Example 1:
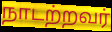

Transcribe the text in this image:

நாடற்றவர்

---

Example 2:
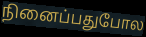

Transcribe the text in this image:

நினைப்பதுபோல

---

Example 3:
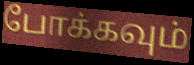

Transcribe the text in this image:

போக்கவும்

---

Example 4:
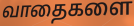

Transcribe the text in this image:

வாதைகளை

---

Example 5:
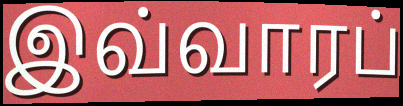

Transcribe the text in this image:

இவ்வாரப்